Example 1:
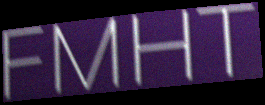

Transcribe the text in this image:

FMHT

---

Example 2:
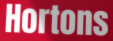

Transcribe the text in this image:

Hortons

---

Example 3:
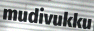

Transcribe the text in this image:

mudivukku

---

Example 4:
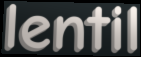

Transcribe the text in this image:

lentil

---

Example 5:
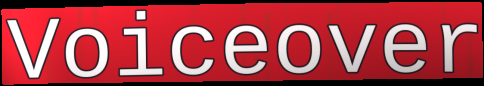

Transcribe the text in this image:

Voiceover